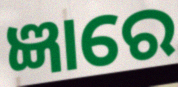
ଜ୍ଞାରେ